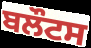
ਬਲੌਟਸ